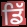
ਡਿੱ